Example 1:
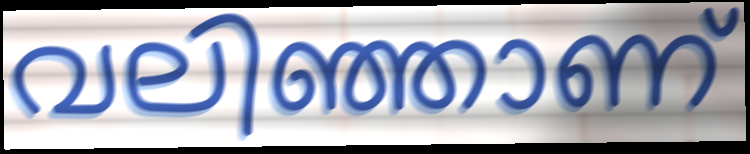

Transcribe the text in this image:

വലിഞ്ഞാണ്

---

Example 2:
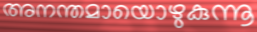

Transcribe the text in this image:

അനന്തമായൊഴുകുന്നൂ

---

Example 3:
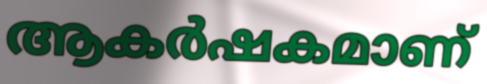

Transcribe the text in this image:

ആകർഷകമാണ്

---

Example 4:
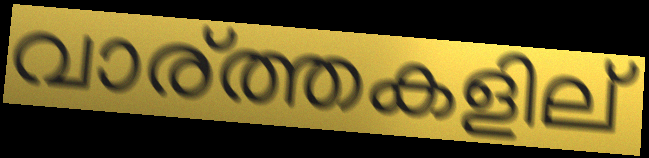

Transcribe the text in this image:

വാര്ത്തകളില്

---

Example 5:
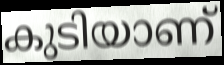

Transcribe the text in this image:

കുടിയാണ്